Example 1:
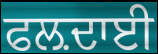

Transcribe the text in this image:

ਫਲ਼ਦਾਈ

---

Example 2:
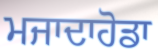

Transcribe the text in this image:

ਮਜਾਦਾਹੋਡਾ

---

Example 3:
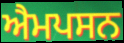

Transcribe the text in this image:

ਐਮਪਸਨ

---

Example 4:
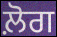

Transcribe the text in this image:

ਲ਼ੋਗ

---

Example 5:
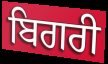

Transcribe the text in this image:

ਬਿਗਰੀ